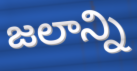
జలాన్ని